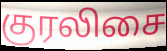
குரலிசை